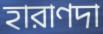
হারাণদা